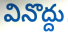
వినొద్దు